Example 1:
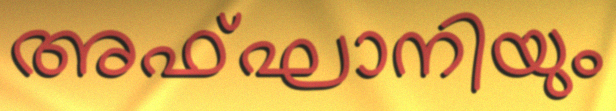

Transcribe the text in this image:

അഫ്ഘാനിയും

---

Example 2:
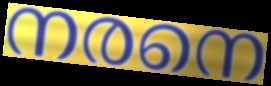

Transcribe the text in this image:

നരനെ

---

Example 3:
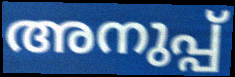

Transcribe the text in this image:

അനുപ്പ്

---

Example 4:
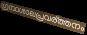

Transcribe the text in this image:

ഗ്രന്ഥശാലപ്രവര്ത്തനം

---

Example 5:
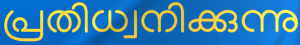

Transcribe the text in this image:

പ്രതിധ്വനിക്കുന്നു